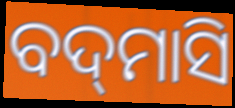
ବଦ୍‌ମାସି